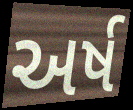
અર્ષ